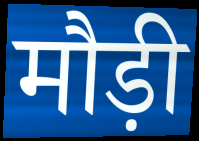
मौड़ी